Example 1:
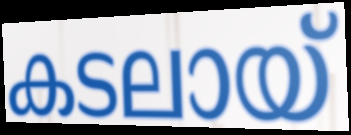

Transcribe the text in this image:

കടലായ്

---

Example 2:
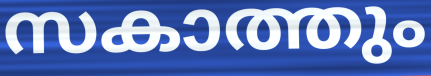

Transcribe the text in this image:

സകാത്തും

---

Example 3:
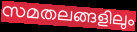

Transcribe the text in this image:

സമതലങ്ങളിലും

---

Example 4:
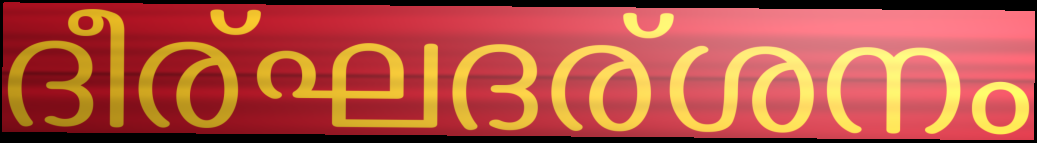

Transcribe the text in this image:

ദീര്ഘദര്ശനം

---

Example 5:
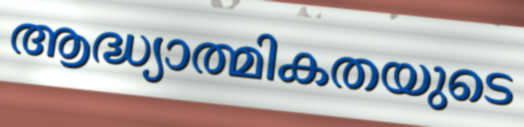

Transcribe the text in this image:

ആദ്ധ്യാത്മികതയുടെ